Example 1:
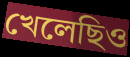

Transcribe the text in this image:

খেলেছিও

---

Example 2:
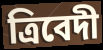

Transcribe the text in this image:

ত্রিবেদী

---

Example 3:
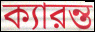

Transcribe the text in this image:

ক্যারন্ত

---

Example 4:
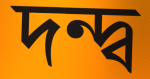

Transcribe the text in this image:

দন্দ্ব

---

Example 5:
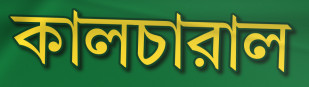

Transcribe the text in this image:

কালচারাল